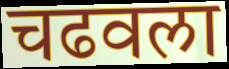
चढवला